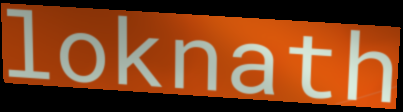
loknath